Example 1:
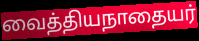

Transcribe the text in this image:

வைத்தியநாதையர்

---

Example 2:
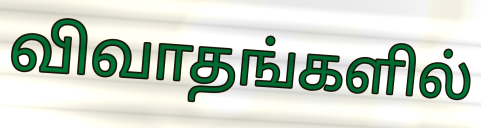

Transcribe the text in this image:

விவாதங்களில்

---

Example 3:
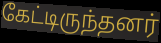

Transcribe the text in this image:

கேட்டிருந்தனர்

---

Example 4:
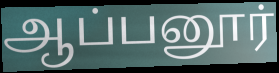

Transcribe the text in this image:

ஆப்பனூர்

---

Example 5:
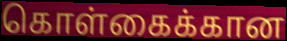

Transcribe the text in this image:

கொள்கைக்கான